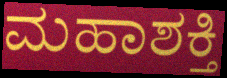
ಮಹಾಶಕ್ತಿ